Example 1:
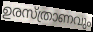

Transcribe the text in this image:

ഉരസ്ത്രാണവും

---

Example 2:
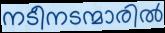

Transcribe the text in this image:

നടീനടന്മാരിൽ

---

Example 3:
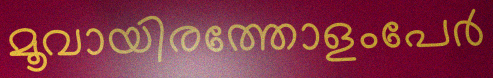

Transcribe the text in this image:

മൂവായിരത്തോളംപേർ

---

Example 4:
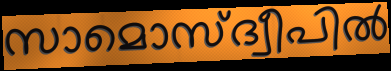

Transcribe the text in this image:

സാമൊസ്ദ്വീപിൽ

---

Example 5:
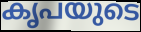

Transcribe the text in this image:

കൃപയുടെ